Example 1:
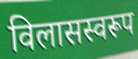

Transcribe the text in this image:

विलासस्वरूप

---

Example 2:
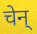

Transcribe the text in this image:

चेन्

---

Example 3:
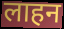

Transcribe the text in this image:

लाहन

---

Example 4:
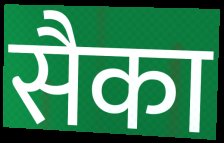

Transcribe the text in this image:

सैका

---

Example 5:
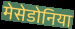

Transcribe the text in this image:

मेसेडोनिया